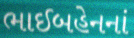
ભાઈબહેનનાં